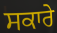
ਸਕਾਰੇ